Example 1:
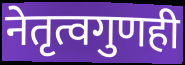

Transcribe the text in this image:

नेतृत्वगुणही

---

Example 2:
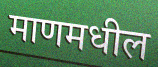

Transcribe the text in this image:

माणमधील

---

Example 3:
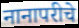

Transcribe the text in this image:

नानापरीचे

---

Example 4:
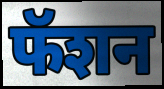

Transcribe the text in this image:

फॅशन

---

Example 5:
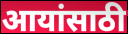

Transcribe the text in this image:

आयांसाठी